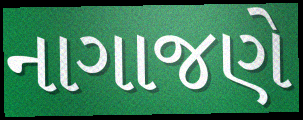
નાગાજણે